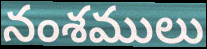
నంశములు